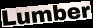
Lumber